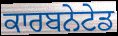
ਕਾਰਬਨੇਟੇਡ